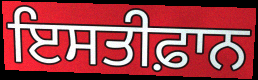
ਇਸਤੀਫ਼ਾਨ